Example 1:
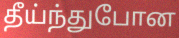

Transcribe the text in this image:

தீய்ந்துபோன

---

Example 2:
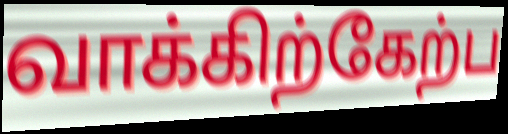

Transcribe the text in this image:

வாக்கிற்கேற்ப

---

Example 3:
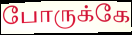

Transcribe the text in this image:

போருக்கே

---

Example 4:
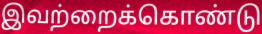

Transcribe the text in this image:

இவற்றைக்கொண்டு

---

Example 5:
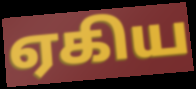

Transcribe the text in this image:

ஏகிய